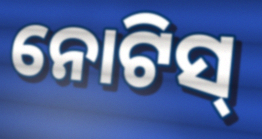
ନୋଟିସ୍